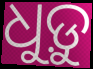
ଧୁଡ଼ୁ